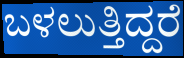
ಬಳಲುತ್ತಿದ್ದರೆ